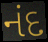
નંદ